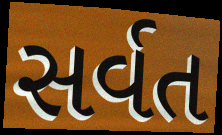
સર્વત